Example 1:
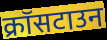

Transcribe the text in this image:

क्रॉसटाउन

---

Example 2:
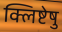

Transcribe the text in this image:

क्लिष्टेषु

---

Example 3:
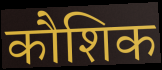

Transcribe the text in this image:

कौशिक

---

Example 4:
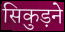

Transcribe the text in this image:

सिकुड़ने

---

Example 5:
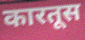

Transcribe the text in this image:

कारतूस